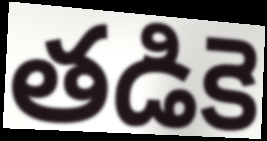
తడికె